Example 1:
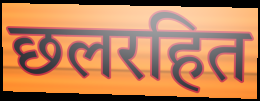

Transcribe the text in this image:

छलरहित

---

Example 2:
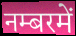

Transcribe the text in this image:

नम्बरमें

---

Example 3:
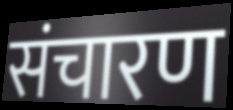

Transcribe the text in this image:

संचारण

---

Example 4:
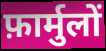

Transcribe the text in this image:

फ़ार्मुलों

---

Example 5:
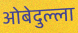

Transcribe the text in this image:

ओबेदुल्ला